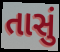
તાસું